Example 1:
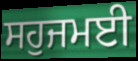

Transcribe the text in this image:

ਸਹੁਜਮਈ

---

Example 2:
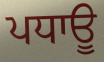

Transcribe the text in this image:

ਪਧਾਊ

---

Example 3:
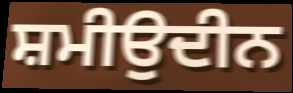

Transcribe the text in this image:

ਸ਼ਮੀਉਦੀਨ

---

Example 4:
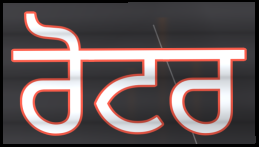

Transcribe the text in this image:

ਰੋਟਰ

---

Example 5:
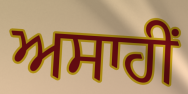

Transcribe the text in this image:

ਅਸਾਹੀਂ